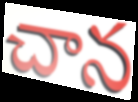
చాన